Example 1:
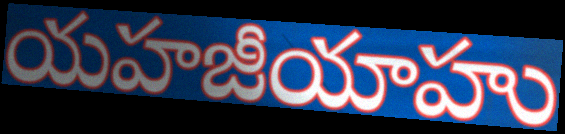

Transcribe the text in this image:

యహజీయాహు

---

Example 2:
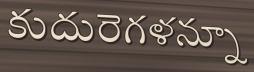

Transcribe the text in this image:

కుదురెగళన్నూ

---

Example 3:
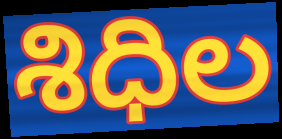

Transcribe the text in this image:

శిధిల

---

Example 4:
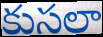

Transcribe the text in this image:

కుసలా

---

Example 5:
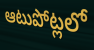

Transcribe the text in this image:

ఆటుపోట్లలో